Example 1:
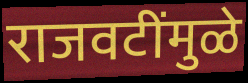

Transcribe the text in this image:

राजवटींमुळे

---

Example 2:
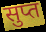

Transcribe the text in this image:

सुप्त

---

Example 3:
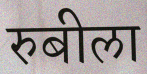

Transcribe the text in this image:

रुबीला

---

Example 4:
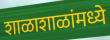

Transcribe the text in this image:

शाळाशाळांमध्ये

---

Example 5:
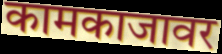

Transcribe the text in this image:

कामकाजावर